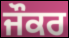
ਜੌਕਰ